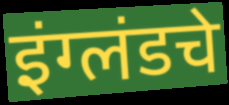
इंग्लंडचे